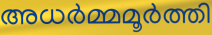
അധർമ്മമൂർത്തി